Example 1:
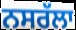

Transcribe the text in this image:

ਨਸਰੱਲਾ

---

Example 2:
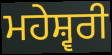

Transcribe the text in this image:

ਮਹੇਸ਼੍ਵਰੀ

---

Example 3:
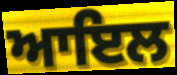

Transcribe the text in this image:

ਆਇਲ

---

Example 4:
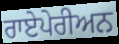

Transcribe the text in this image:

ਰਾਏਪੇਰੀਅਨ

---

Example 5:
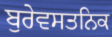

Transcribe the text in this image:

ਬੁਰੇਵਸਤਨਿਕ